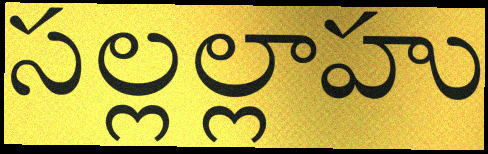
సల్లల్లాహు